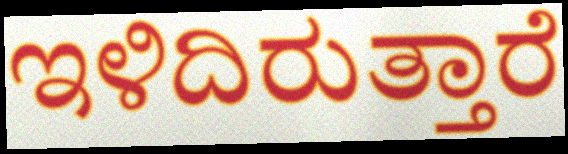
ಇಳಿದಿರುತ್ತಾರೆ